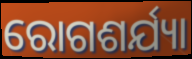
ରୋଗଶର୍ଯ୍ୟା